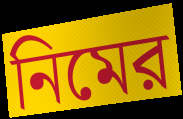
নিমের